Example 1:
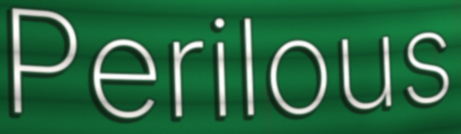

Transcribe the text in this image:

Perilous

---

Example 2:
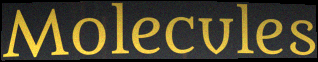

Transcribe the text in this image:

Molecules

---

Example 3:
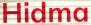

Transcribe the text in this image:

Hidma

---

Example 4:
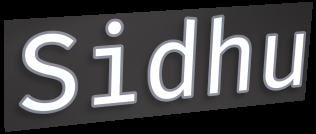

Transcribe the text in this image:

Sidhu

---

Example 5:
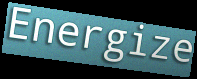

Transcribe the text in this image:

Energize